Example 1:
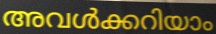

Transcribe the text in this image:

അവൾക്കറിയാം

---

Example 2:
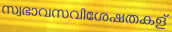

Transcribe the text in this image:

സ്വഭാവസവിശേഷതകള്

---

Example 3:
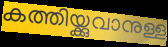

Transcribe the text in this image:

കത്തിയ്ക്കുവാനുള്ള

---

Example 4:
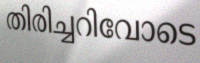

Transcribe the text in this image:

തിരിച്ചറിവോടെ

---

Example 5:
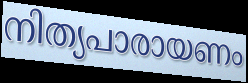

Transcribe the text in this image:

നിത്യപാരായണം